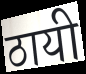
ठायी